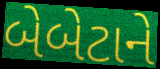
બેબેટાને